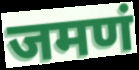
जमणं